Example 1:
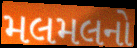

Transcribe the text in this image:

મલમલનો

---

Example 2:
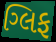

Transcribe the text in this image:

ગ્લિફ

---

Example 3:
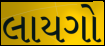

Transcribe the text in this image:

લાયગો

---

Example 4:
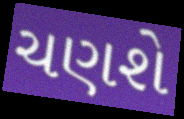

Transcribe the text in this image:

ચણશે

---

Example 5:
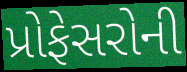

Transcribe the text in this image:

પ્રોફેસરોની